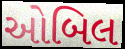
ઓબિલ